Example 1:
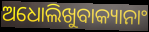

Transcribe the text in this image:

ଅଧୋଲିଖୁବାକ୍ୟାନାଂ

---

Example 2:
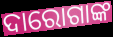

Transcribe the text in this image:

ଦାରୋଗାଙ୍କ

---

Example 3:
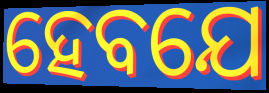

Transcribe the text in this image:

ହେବଯେ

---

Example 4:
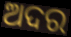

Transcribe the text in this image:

ଅଦର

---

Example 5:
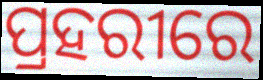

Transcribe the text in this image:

ପ୍ରହରୀରେ